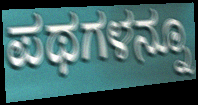
ಪಥಗಳನ್ನೂ